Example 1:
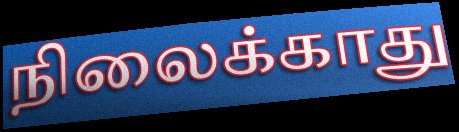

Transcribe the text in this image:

நிலைக்காது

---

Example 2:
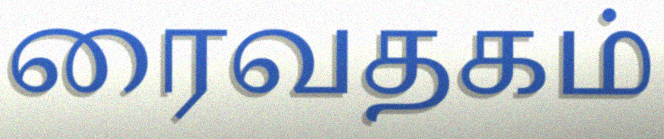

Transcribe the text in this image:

ரைவதகம்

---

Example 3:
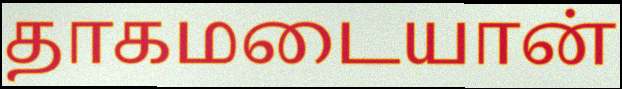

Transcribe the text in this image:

தாகமடையான்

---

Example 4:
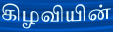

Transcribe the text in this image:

கிழவியின்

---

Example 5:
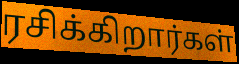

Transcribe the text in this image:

ரசிக்கிறார்கள்